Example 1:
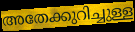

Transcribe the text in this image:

അതേക്കുറിച്ചുള്ള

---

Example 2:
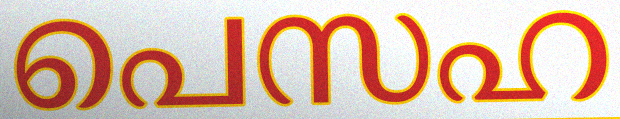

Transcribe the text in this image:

പെസഹ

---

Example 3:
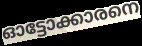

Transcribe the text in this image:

ഓട്ടോക്കാരനെ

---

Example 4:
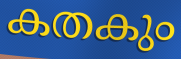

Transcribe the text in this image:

കതകും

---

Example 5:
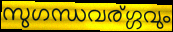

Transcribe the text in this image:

സുഗന്ധവര്ഗ്ഗവും